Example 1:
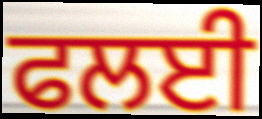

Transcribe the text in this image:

ਫਲਈ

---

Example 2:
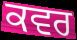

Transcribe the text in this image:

ਕਵਰ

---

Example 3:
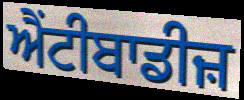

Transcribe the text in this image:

ਐਂਟੀਬਾਡੀਜ਼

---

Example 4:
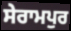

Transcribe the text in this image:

ਸੇਰਾਮਪੁਰ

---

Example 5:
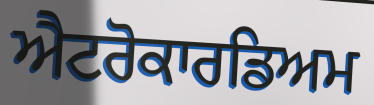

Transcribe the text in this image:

ਐਟਰੋਕਾਰਡਿਅਮ